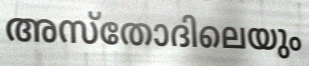
അസ്തോദിലെയും